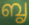
ബൃ